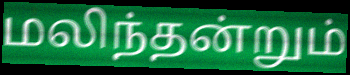
மலிந்தன்றும்